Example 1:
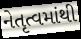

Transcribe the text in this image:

નેતૃત્વમાંથી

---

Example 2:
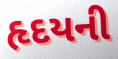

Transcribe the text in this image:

હૃદયની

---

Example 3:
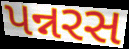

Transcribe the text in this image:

પન્નરસ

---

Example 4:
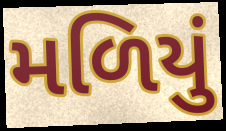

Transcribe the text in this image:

મળિયું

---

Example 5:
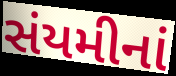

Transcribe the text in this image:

સંયમીનાં